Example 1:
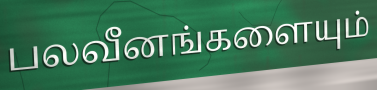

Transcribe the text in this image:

பலவீனங்களையும்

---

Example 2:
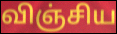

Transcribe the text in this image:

விஞ்சிய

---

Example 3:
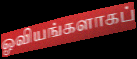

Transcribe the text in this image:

ஓவியங்களாகப்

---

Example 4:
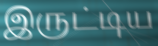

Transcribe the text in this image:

இருட்டிய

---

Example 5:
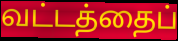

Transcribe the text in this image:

வட்டத்தைப்